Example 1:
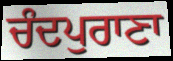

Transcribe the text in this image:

ਚੰਦਪੁਰਾਣਾ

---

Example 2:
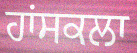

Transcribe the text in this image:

ਹਾਂਸਕਲਾ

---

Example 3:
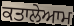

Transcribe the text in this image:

ਕਤਾਲੇਆਮ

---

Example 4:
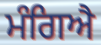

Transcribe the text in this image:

ਮੰਗਿਐ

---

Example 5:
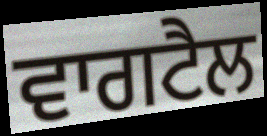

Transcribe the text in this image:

ਵਾਗਟੈਲ